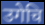
उगेचि